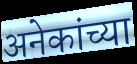
अनेकांच्या